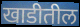
खाडीतील